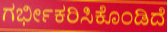
ಗರ್ಭೀಕರಿಸಿಕೊಂಡಿದೆ